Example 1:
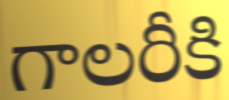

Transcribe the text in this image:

గాలరీకి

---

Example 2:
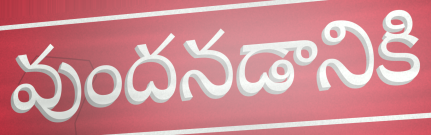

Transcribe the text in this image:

వుందనడానికి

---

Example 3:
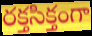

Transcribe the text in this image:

రక్తసిక్తంగా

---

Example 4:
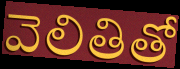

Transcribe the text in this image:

వెలితితో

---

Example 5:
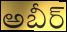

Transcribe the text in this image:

అబీర్